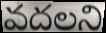
వదలని